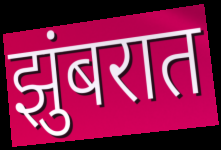
झुंबरात